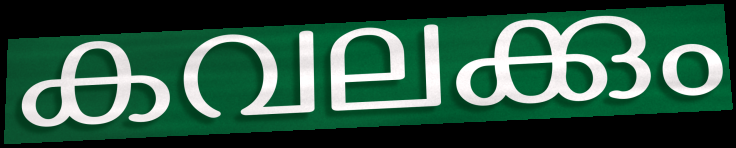
കവലക്കും